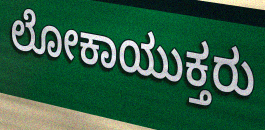
ಲೋಕಾಯುಕ್ತರು